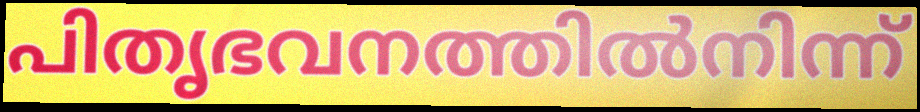
പിതൃഭവനത്തിൽനിന്ന്